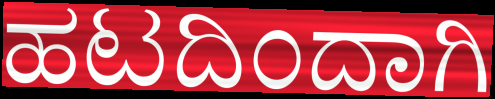
ಹಟದಿಂದಾಗಿ